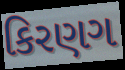
કિરણગ